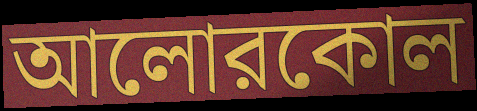
আলোরকোল